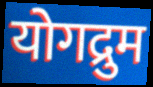
योगद्रुम